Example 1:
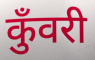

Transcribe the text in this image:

कुँवरी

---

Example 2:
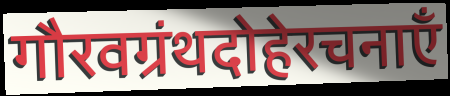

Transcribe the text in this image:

गौरवग्रंथदोहेरचनाएँ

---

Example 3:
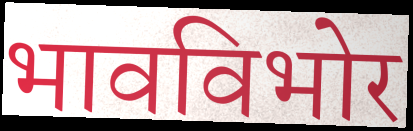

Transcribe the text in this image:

भावविभोर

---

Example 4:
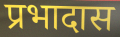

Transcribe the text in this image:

प्रभादास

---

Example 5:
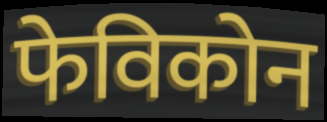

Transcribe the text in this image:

फेविकोन